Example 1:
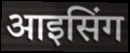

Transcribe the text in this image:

आइसिंग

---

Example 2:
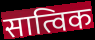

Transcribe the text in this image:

सात्विक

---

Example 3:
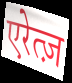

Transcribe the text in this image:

एरेत्ज़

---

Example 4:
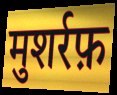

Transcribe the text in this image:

मुशर्रफ़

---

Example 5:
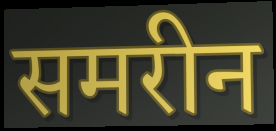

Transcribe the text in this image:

समरीन